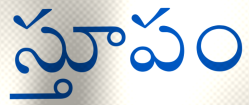
స్తూపం